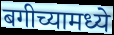
बगीच्यामध्ये